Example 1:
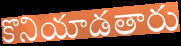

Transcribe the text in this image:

కొనియాడతారు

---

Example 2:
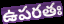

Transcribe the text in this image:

ఉపరతః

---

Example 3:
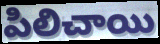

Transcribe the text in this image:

పిలిచాయి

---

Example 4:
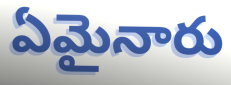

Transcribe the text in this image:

ఏమైనారు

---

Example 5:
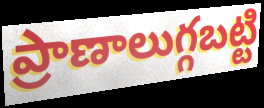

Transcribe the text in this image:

ప్రాణాలుగ్గబట్టి